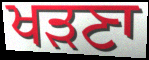
ਖੜਣਾ